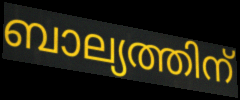
ബാല്യത്തിന്